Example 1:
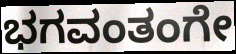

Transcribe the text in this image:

ಭಗವಂತಂಗೇ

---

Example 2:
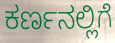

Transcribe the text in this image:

ಕರ್ಣನಲ್ಲಿಗೆ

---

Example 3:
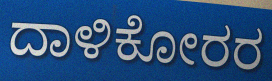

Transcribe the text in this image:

ದಾಳಿಕೋರರ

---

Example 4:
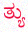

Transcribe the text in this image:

ತ್ಯು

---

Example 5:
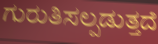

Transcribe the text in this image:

ಗುರುತಿಸಲ್ಪಡುತ್ತದೆ